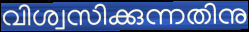
വിശ്വസിക്കുന്നതിനു